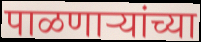
पाळणाऱ्यांच्या